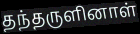
தந்தருளினாள்